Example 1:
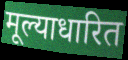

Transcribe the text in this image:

मूल्याधारित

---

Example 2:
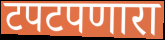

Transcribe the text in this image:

टपटपणारा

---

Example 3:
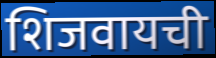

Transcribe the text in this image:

शिजवायची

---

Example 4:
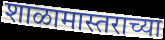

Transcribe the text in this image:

शाळामास्तराच्या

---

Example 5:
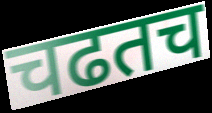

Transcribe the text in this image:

चढतच